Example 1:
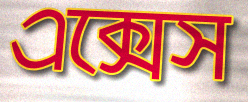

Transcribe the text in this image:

এক্সেস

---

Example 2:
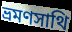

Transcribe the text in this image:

ভ্রমণসাথি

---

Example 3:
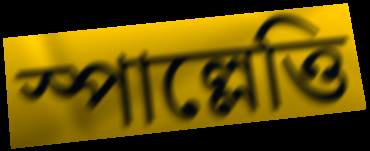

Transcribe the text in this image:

স্পাল্লেত্তি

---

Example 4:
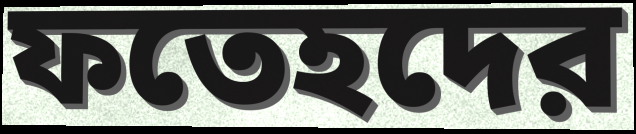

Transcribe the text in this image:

ফতেহদের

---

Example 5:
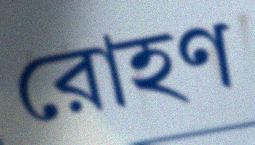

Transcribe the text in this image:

রোহণ